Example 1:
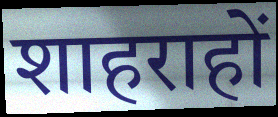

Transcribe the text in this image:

शाहराहों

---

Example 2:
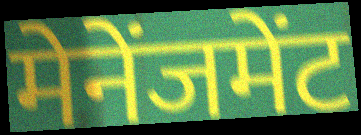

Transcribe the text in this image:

मेनेंजमेंट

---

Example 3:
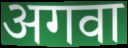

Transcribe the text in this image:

अगवा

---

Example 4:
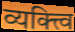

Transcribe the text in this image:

व्यक्त्त्वि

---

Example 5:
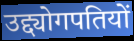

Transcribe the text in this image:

उद्द्योगपतियों